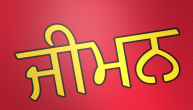
ਜੀਮਨ